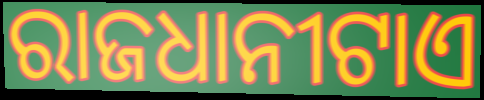
ରାଜଧାନୀଟାଏ